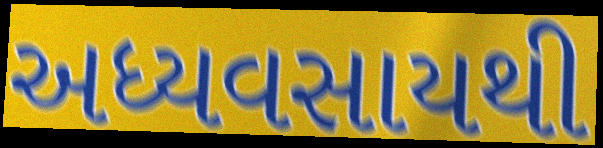
અધ્યવસાયથી